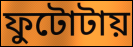
ফুটোটায়